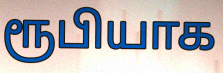
ரூபியாக